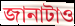
জানাটাও